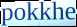
pokkhe